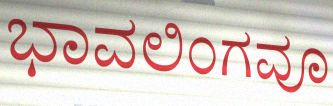
ಭಾವಲಿಂಗವೂ